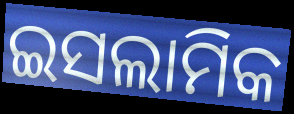
ଇସଲାମିକ